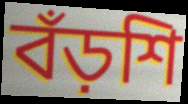
বঁড়শি